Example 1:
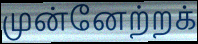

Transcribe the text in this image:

முன்னேற்றக்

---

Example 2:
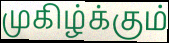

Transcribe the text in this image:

முகிழ்க்கும்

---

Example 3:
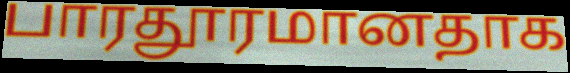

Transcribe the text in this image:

பாரதூரமானதாக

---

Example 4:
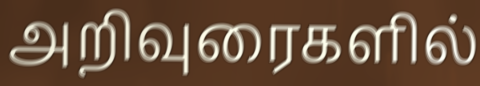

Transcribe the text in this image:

அறிவுரைகளில்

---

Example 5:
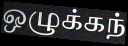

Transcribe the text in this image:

ஒழுக்கந்